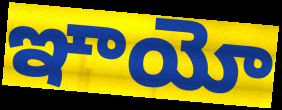
ఞాయో